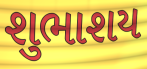
શુભાશય